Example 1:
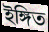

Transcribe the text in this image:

ইঙ্গিত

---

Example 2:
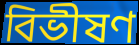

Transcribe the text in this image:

বিভীষণ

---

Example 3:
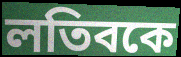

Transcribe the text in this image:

লতিবকে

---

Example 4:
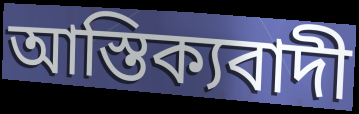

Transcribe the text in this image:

আস্তিক্যবাদী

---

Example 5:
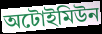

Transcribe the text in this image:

অটোইমিউন